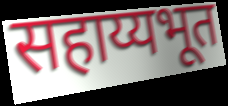
सहाय्यभूत